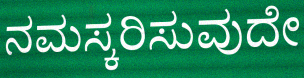
ನಮಸ್ಕರಿಸುವುದೇ